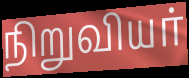
நிறுவியர்